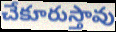
చేకూరుస్తావు